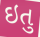
ઇતુ